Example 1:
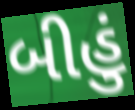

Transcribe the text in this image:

બીહું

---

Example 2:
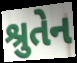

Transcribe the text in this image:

શ્રુતેન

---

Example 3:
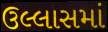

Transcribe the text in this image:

ઉલ્લાસમાં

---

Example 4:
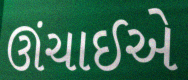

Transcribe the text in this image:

ઊંચાઈએ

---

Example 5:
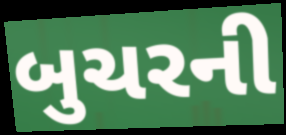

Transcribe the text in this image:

બુચરની